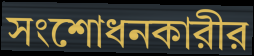
সংশোধনকারীর